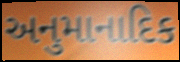
અનુમાનાદિક